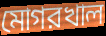
মোগরখাল